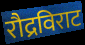
रौद्रविराट